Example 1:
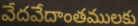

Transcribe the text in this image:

వేదవేదాంతములకు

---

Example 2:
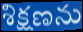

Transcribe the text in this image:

శిక్షణను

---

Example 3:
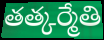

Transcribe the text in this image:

తత్కర్మేతి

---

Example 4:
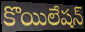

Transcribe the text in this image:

కొయిలేషన్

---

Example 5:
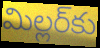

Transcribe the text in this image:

మిల్లర్‌కు